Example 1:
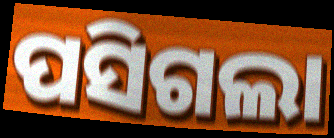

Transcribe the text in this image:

ପସିଗଲା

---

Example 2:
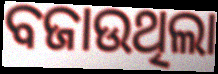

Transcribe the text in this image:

ବଜାଉଥିଲା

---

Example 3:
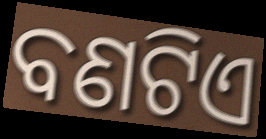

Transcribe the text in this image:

ବଣଟିଏ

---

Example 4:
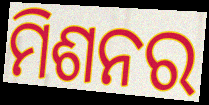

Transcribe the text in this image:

ମିଶନର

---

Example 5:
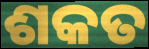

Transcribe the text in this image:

ଶକତ